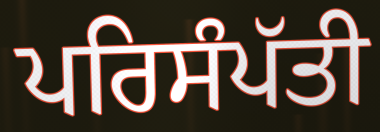
ਪਰਿਸੰਪੱਤੀ